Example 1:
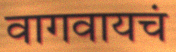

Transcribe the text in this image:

वागवायचं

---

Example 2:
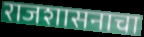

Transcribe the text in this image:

राजशासनाचा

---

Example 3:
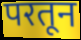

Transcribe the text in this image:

परतून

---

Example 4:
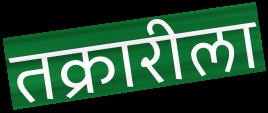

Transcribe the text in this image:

तक्रारीला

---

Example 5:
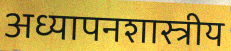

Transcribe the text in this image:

अध्यापनशास्त्रीय